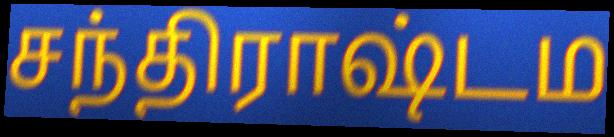
சந்திராஷ்டம